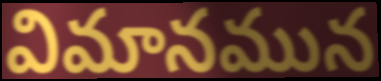
విమానమున